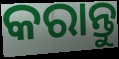
କରାନ୍ତୁ